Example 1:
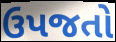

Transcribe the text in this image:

ઉપજતો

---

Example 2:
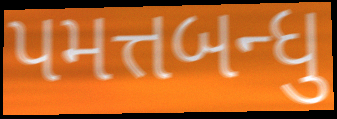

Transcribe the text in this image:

પમત્તબન્ધુ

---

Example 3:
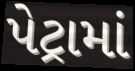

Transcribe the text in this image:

પેટ્રામાં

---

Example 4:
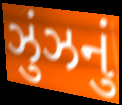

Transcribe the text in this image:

ઝુંઝનું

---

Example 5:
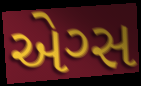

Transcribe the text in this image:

એગ્સ